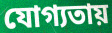
যোগ্যতায়